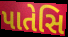
પાતેસિ